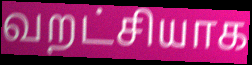
வறட்சியாக